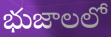
భుజాలలో